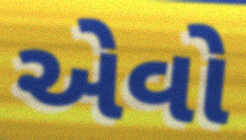
એેવો